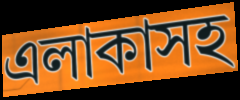
এলাকাসহ